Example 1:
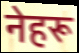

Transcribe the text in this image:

नेहरू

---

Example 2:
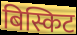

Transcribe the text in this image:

बिस्किट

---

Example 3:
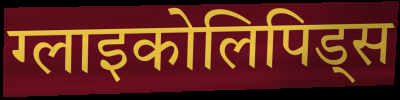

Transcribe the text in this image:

ग्लाइकोलिपिड्स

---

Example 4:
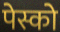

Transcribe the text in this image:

पेस्को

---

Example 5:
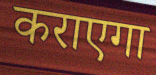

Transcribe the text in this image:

कराएगा